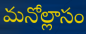
మనోల్లాసం